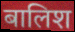
बालिश